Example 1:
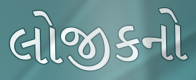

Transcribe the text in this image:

લોજીકનો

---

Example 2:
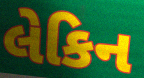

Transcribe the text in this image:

લેકિન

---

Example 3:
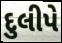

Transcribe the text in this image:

દુલીપે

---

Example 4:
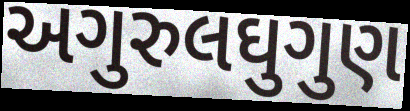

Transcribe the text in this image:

અગુરુલઘુગુણ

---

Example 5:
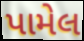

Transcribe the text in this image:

પામેલ